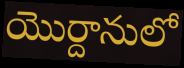
యొర్దానులో